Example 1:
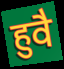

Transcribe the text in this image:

हुवै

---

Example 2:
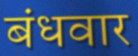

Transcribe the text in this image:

बंधवार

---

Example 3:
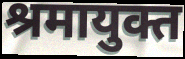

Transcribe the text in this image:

श्रमायुक्त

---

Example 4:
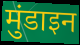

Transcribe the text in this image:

मुंडाइन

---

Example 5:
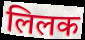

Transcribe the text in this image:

लिलक